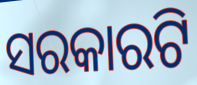
ସରକାରଟି